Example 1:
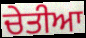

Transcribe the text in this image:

ਚੇਤੀਆ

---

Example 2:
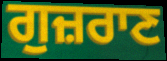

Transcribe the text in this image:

ਗੁਜ਼ਰਾਣ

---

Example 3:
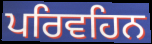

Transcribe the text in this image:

ਪਰਿਵਹਿਨ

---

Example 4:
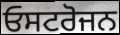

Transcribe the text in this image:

ਓਸਟਰੋਜਨ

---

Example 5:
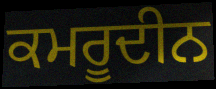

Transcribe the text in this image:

ਕਮਰੂਦੀਨ